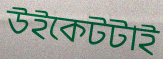
উইকেটটাই